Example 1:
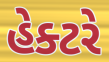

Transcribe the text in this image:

હેક્ટરે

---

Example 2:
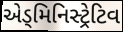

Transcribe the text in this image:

એડ્મિનિસ્ટ્રેટિવ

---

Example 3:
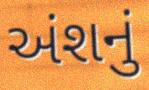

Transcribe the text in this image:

અંશનું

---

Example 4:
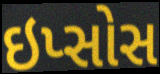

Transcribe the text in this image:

ઇપ્સોસ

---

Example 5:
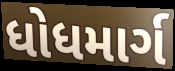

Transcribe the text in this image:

ધોધમાર્ગ